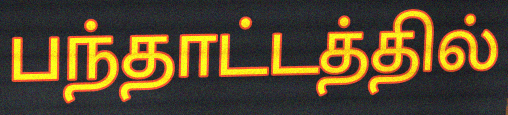
பந்தாட்டத்தில்